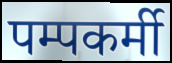
पम्पकर्मी